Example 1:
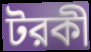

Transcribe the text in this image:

টরকী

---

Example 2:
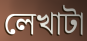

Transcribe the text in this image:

লেখাটা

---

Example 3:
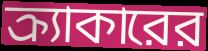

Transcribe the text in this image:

ক্র্যাকারের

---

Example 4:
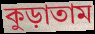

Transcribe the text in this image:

কুড়াতাম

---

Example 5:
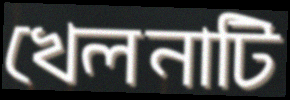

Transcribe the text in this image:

খেলনাটি